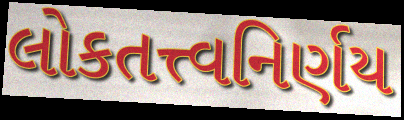
લોકતત્ત્વનિર્ણય